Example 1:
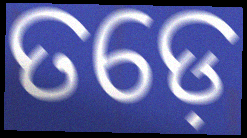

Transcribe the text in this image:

ତଡ଼େ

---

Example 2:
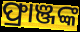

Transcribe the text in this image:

ଫ୍ରାଞ୍ଜଙ୍କ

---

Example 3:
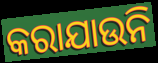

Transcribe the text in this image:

କରାଯାଉନି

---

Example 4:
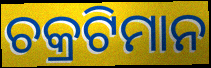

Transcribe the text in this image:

ଚକ୍ରଟିମାନ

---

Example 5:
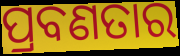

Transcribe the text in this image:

ପ୍ରବଣତାର